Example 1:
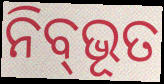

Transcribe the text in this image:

ନିବ୍‌ଭୂତ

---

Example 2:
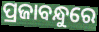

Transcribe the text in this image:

ପ୍ରଜାବନ୍ଧୁରେ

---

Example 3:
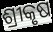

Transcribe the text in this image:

ଶ୍ରୀକୃଷ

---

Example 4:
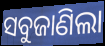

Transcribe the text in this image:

ସବୁଜାଣିଲା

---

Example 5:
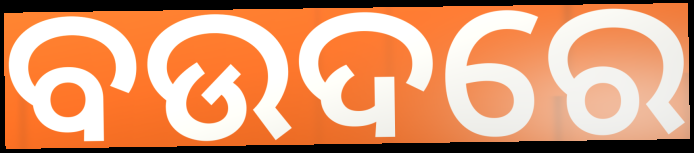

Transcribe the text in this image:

ବଉଦରେ